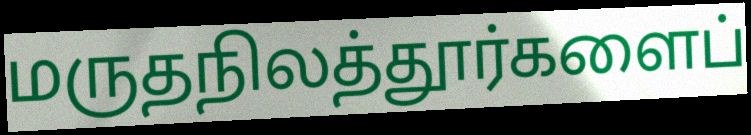
மருதநிலத்தூர்களைப்